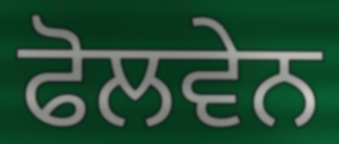
ਫੋਲਵੇਨ